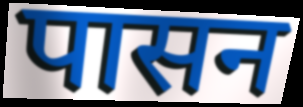
पासन